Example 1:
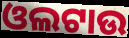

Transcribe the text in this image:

ଓଲଟାଉ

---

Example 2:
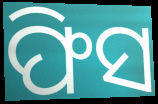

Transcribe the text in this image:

ଫିସ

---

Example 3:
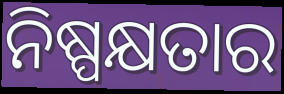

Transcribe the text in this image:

ନିଷ୍ପକ୍ଷତାର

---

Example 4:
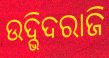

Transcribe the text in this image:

ଉଦ୍ଭିଦରାଜି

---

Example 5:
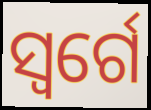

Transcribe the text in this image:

ସ୍ୱର୍ଗେ